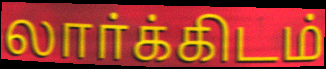
லார்க்கிடம்